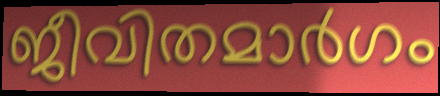
ജീവിതമാർഗം